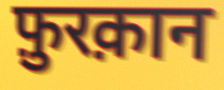
फ़ुरक़ान